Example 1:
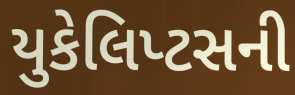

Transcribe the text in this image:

યુકેલિપ્ટસની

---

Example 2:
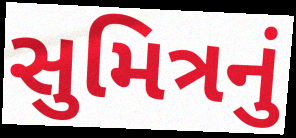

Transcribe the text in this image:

સુમિત્રનું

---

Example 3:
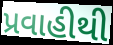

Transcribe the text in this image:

પ્રવાહીથી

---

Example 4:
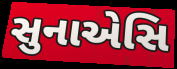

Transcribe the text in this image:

સુનાએસિ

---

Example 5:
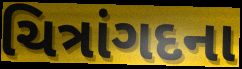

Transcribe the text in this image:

ચિત્રાંગદના